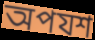
অপযশ